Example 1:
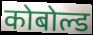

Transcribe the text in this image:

कोबोल्ड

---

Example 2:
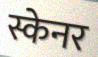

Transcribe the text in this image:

स्केनर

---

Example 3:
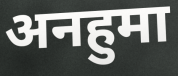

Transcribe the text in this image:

अनहुमा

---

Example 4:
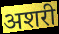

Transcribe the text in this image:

अशरी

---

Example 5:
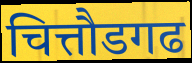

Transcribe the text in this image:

चित्तौडगढ